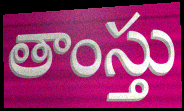
తాంస్తు